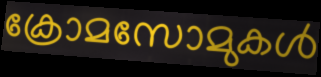
ക്രോമസോമുകൾ